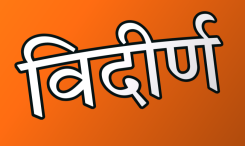
विदीर्ण